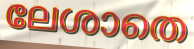
ലേശാതെ